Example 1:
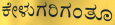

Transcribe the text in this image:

ಕೇಳುಗರಿಗಂತೂ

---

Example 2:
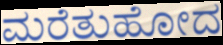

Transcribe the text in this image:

ಮರೆತುಹೋದ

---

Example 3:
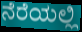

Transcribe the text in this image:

ನೆರೆಯಲ್ಲಿ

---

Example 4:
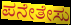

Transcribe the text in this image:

ಪನೇತೇಸು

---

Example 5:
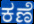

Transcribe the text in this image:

ಕಣೆ